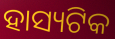
ହାସ୍ୟଟିକ